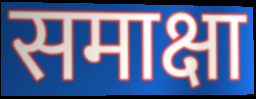
समाक्षा